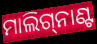
ମାଲିଗ୍‌ନାଣ୍ଟ